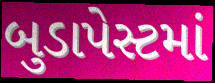
બુડાપેસ્ટમાં